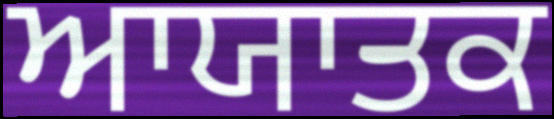
ਆਯਾਤਕ